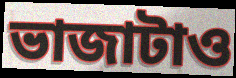
ভাজাটাও